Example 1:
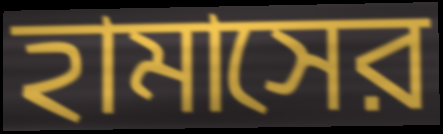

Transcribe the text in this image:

হামাসের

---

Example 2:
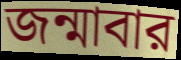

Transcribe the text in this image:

জন্মাবার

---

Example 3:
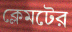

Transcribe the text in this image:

ক্লেমটের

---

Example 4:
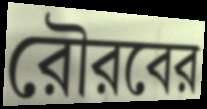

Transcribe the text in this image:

রৌরবের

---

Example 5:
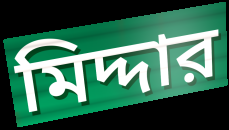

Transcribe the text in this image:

মিদ্দার